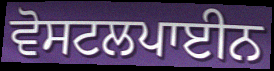
ਵੋਸਟਲਪਾਈਨ